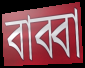
বাব্বা